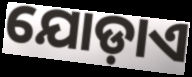
ଯୋଡ଼ାଏ